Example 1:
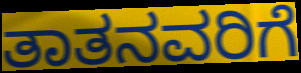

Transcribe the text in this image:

ತಾತನವರಿಗೆ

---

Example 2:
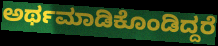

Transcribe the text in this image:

ಅರ್ಥಮಾಡಿಕೊಂಡಿದ್ದರೆ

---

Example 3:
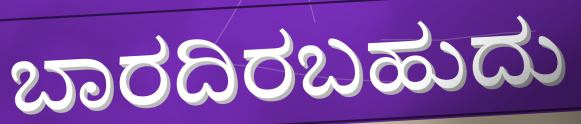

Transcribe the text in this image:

ಬಾರದಿರಬಹುದು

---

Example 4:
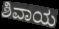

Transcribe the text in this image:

ಶಿವಾಯ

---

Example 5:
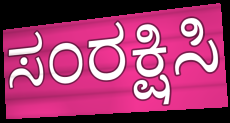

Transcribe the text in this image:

ಸಂರಕ್ಷಿಸಿ